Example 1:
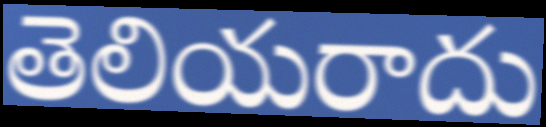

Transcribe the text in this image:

తెలియరాదు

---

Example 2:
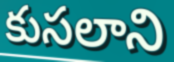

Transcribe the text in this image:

కుసలాని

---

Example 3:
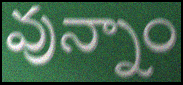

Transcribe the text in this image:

వున్నాం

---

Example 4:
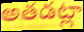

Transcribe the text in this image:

అతడట్లా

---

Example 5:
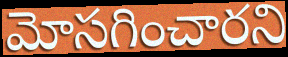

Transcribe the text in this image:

మోసగించారని